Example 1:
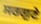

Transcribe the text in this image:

ਸਰਗੁਣੇ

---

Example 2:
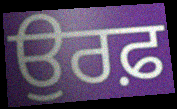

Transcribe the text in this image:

ਉਰਫ਼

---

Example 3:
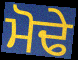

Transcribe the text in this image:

ਮੋਢੇ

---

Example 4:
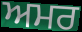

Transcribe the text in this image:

ਅਮਰ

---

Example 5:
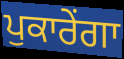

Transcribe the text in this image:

ਪੁਕਾਰੇਂਗਾ